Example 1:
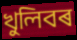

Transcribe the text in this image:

খুলিবৰ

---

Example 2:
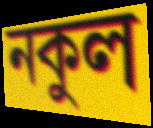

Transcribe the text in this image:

নকুল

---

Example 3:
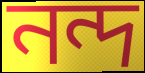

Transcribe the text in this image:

নন্দ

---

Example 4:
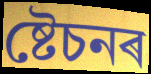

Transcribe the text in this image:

ষ্টেচনৰ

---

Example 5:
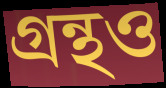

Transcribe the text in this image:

গ্ৰন্থও